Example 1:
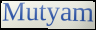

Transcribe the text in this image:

Mutyam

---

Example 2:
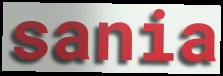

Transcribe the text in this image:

sania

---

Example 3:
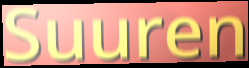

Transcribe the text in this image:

Suuren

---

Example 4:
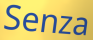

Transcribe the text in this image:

Senza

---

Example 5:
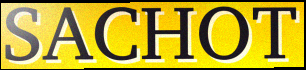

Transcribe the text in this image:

SACHOT